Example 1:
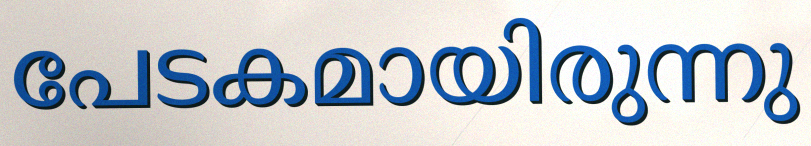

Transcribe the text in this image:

പേടകമായിരുന്നു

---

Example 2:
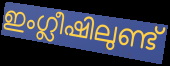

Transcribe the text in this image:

ഇംഗ്ലീഷിലുണ്ട്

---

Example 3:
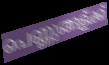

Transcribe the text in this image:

പെണ്ണുങ്ങള്ക്ക്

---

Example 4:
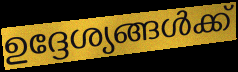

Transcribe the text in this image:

ഉദ്ദേശ്യങ്ങൾക്ക്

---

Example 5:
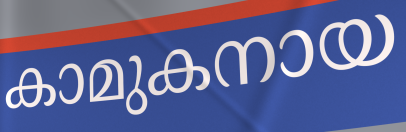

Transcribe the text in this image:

കാമുകനായ